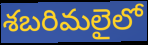
శబరిమలైలో